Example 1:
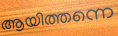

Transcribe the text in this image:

ആയിത്തന്നെ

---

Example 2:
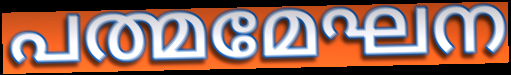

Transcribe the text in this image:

പത്മമേഘന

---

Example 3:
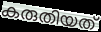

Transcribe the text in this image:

കരുതിയത്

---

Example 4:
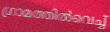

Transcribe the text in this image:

ഗ്രാമത്തിൽവെച്ച്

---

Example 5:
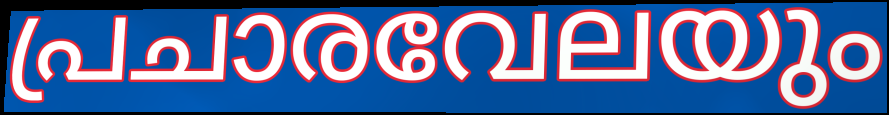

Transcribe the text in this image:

പ്രചാരവേലയും